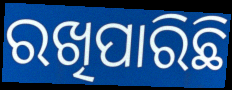
ରଖିପାରିଛି